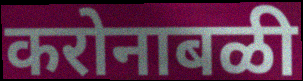
करोनाबळी